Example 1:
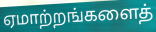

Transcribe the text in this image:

ஏமாற்றங்களைத்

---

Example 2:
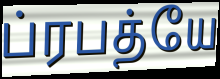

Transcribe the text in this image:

ப்ரபத்யே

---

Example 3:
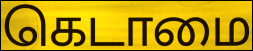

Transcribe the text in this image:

கெடாமை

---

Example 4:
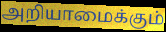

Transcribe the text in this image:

அறியாமைக்கும்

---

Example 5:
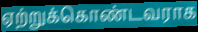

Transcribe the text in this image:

ஏற்றுக்கொண்டவராக